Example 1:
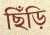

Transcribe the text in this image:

ছিঁড়ি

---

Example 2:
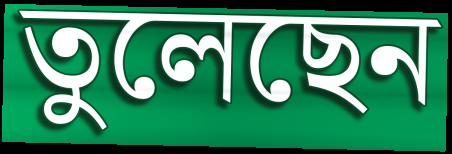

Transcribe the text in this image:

তুলেছেন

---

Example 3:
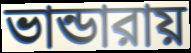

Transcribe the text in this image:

ভান্ডারায়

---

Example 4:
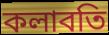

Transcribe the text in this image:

কলাবতি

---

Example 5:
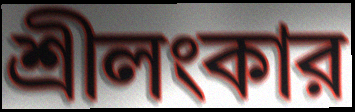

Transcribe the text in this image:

শ্রীলংকার